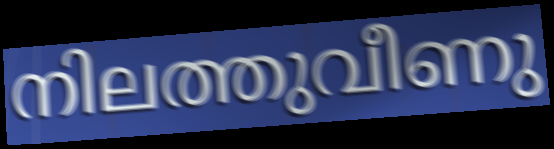
നിലത്തുവീണു